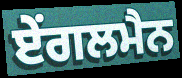
ਏਂਗਲਮੈਨ